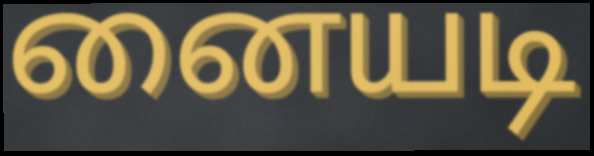
னையடி